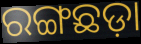
ରଙ୍ଗଛଡ଼ା